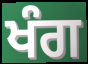
ਖੰਗ